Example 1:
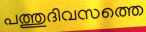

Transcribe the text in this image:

പത്തുദിവസത്തെ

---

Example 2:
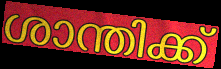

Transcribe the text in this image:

ശാന്തിക്ക്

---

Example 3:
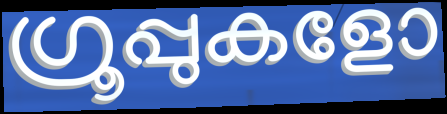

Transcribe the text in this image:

ഗ്രൂപ്പുകളോ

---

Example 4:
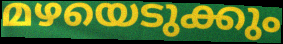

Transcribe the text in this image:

മഴയെടുക്കും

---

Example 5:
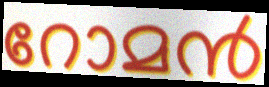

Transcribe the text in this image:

റോമൻ